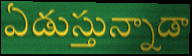
ఏడుస్తున్నాడా